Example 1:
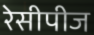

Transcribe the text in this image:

रेसीपीज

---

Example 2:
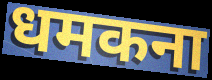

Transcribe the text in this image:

धमकना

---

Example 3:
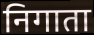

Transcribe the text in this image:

निगाता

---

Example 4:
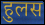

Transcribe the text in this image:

हुलस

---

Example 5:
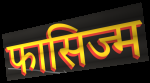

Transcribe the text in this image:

फासिज्म